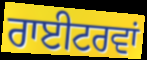
ਰਾਈਟਰਵਾਂ